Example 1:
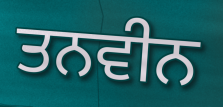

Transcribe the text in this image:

ਤਨਵੀਨ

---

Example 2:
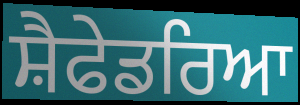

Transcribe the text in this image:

ਸ਼ੈਫੇਡਰਿਆ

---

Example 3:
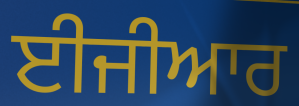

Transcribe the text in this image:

ਈਜੀਆਰ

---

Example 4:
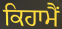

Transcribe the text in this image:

ਕਿਹਾਮੈਂ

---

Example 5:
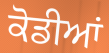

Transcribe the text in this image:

ਕੋਡੀਆਂ